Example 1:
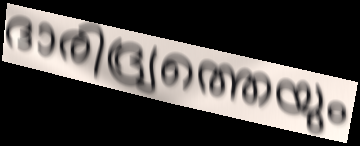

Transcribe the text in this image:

ദാരിദ്ര്യത്തെയും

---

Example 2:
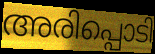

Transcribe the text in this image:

അരിപ്പൊടി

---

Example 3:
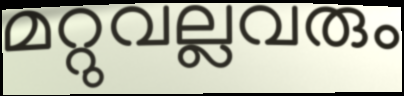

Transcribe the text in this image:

മറ്റുവല്ലവരും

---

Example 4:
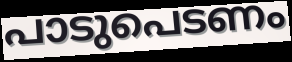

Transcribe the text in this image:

പാടുപെടണം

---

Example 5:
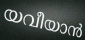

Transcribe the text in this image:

യവീയാൻ